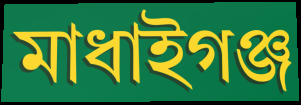
মাধাইগঞ্জ